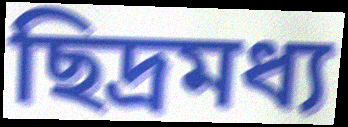
ছিদ্রমধ্য